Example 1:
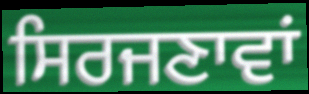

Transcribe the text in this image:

ਸਿਰਜਣਾਵਾਂ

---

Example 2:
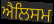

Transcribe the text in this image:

ਐਲਿਸਮ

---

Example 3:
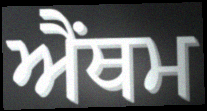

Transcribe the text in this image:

ਐਂਥਮ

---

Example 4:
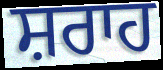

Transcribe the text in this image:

ਸ਼ਰਾਹ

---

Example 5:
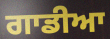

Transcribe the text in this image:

ਗਾਡੀਆ